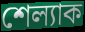
শেল্যাক